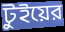
টুইয়ের